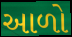
આળો